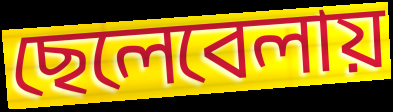
ছেলেবেলায়